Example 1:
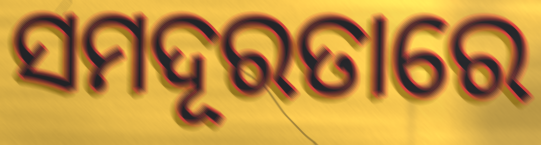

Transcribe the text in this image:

ସମଦୂରତାରେ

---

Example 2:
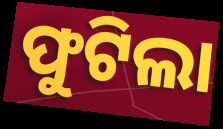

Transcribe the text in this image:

ଫୁଟିଲା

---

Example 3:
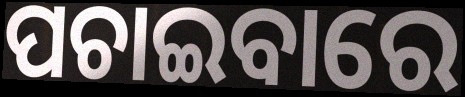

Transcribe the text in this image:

ପଚାଇବାରେ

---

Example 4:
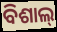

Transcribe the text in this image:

ବିଶାଲ୍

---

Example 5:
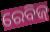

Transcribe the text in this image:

ରେବିଜ୍